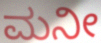
ಮನೀ